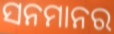
ସନମାନର